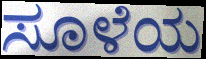
ಸೂಳೆಯ